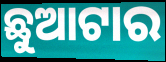
ଛୁଆଟାର